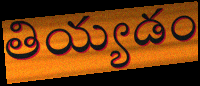
తియ్యడం